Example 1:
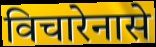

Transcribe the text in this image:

विचारेनासे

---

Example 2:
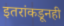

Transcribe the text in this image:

इतरांकडूनही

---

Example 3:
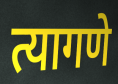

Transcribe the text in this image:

त्यागणे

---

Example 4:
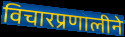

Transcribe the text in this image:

विचारप्रणालीने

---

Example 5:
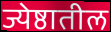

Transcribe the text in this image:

ज्येष्ठातील